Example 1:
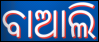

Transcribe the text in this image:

ବାଆଲି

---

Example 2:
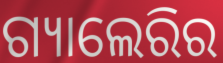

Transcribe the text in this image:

ଗ୍ୟାଲେରିର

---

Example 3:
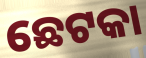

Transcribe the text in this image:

ଛେଟକା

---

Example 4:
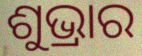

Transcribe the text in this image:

ଶୁଭ୍ରାର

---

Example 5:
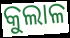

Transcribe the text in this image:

କୁଲାଳ